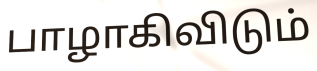
பாழாகிவிடும்